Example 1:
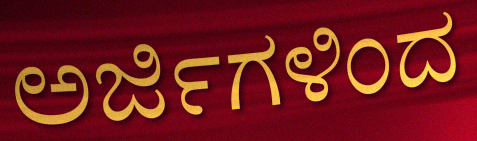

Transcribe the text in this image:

ಅರ್ಜಿಗಳಿಂದ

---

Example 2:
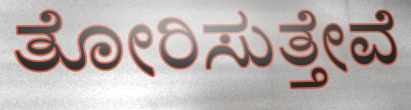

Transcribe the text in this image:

ತೋರಿಸುತ್ತೇವೆ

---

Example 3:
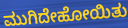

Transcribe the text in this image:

ಮುಗಿದೇಹೋಯಿತು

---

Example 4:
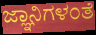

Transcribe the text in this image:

ಜ್ಞಾನಿಗಳಂತೆ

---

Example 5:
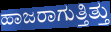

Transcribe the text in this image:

ಹಾಜರಾಗುತ್ತಿತ್ತು